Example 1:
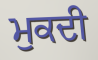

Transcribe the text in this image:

ਮੁਕਦੀ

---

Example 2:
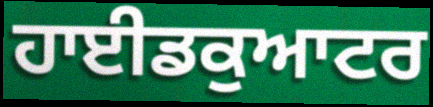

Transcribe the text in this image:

ਹਾਈਡਕੁਆਟਰ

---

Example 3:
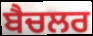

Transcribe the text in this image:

ਬੈਚਲਰ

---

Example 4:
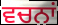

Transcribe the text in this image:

ਵਚਨਾਂ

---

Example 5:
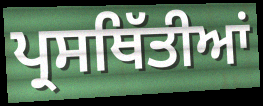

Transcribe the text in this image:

ਪ੍ਰਸਥਿੱਤੀਆਂ